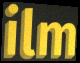
ilm